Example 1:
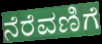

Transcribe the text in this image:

ನೆರೆವಣಿಗೆ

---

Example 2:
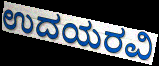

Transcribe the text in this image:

ಉದಯರವಿ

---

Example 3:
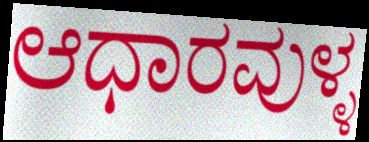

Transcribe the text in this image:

ಆಧಾರವುಳ್ಳ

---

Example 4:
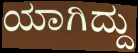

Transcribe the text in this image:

ಯಾಗಿದ್ದು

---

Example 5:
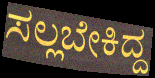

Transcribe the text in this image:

ಸಲ್ಲಬೇಕಿದ್ದ